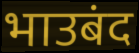
भाउबंद